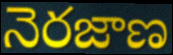
నెరజాణ